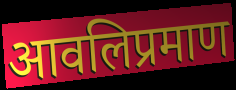
आवलिप्रमाण